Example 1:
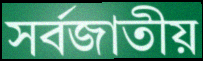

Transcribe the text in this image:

সর্বজাতীয়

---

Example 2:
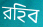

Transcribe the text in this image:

রহিব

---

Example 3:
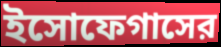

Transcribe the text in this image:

ইসোফেগাসের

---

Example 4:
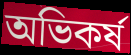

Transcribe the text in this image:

অভিকর্ষ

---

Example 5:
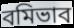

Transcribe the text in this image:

বমিভাব